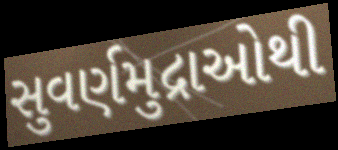
સુવર્ણમુદ્રાઓથી